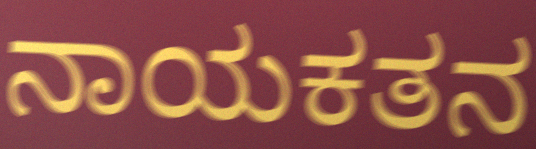
ನಾಯಕತನ